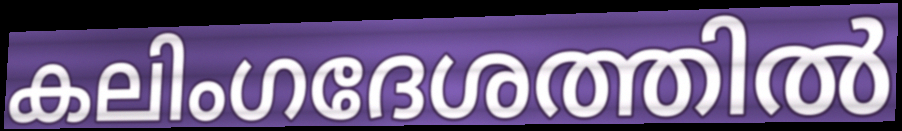
കലിംഗദേശത്തിൽ